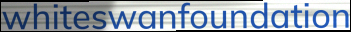
whiteswanfoundation